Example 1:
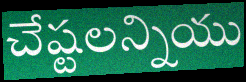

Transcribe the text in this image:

చేష్టలన్నియు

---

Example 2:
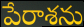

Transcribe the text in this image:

పేరాశను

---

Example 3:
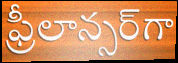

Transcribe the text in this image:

ఫ్రీలాన్సర్‌గా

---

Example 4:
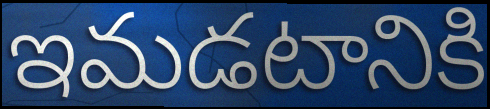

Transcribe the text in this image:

ఇమడటానికి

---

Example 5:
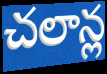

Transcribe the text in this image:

చలాన్ల